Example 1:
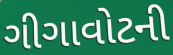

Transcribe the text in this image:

ગીગાવોટની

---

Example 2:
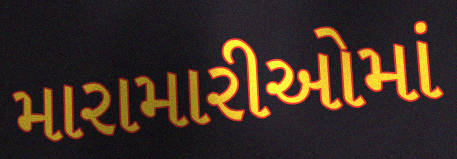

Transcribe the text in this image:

મારામારીઓમાં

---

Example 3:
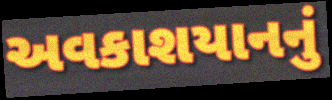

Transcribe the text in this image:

અવકાશયાનનું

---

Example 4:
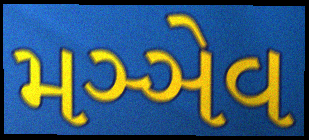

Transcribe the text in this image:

મઞ્ઞેવ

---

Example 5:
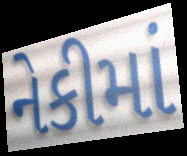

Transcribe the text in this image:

નેકીમાં